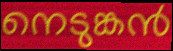
നെടുങ്കൻ